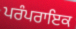
ਪਰੰਪਰਾਇਕ